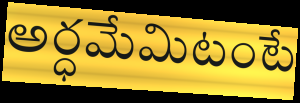
అర్ధమేమిటంటే